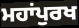
ਮਹਾਂਪੁਰਖ